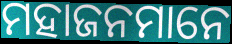
ମହାଜନମାନେ